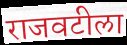
राजवटीला